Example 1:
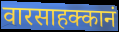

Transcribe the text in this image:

वारसाहक्कानं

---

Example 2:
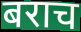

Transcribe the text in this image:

बराच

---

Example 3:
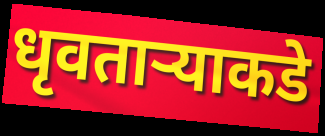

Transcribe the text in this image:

धृवतार्‍याकडे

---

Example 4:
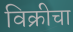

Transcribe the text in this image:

विक्रीचा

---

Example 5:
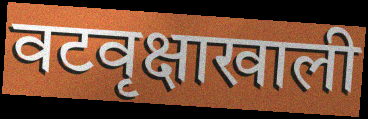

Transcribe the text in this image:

वटवृक्षाखाली